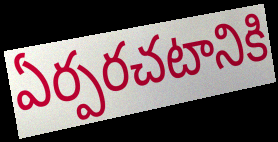
ఏర్పరచటానికి